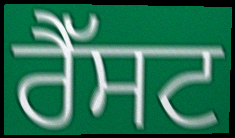
ਰੈੱਸਟ